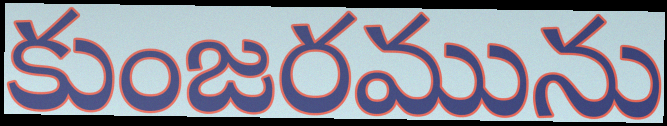
కుంజరమును